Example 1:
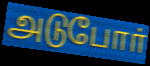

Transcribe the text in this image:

அடுபோர்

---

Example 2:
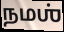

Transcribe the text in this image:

நமஶ்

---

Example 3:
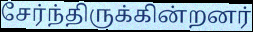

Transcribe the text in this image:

சேர்ந்திருக்கின்றனர்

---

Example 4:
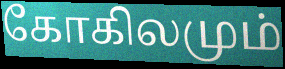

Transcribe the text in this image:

கோகிலமும்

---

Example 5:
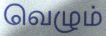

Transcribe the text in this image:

வெழும்